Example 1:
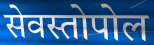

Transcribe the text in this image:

सेवस्तोपोल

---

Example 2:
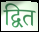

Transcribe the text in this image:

द्वित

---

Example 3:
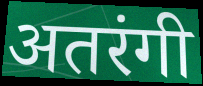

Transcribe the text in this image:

अतरंगी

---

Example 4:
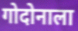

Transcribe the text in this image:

गोदोनाला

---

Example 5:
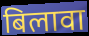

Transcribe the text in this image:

बिलावा